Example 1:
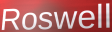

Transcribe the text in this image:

Roswell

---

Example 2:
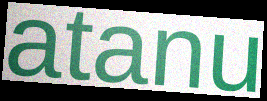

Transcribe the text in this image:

atanu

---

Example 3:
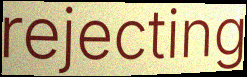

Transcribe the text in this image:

rejecting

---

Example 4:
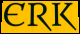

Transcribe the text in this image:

ERK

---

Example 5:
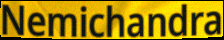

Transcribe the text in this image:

Nemichandra